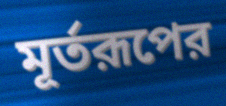
মূর্তরূপের